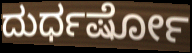
ದುರ್ಧರ್ಷೋ